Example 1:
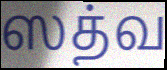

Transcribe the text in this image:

ஸத்வ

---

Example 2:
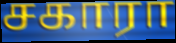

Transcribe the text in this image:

சகாரா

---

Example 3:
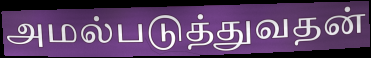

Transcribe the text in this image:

அமல்படுத்துவதன்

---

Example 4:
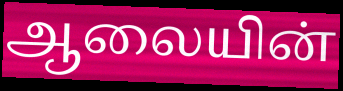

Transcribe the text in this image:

ஆலையின்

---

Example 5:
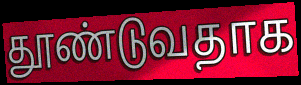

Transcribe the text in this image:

தூண்டுவதாக